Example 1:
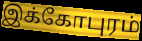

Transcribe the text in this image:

இக்கோபுரம்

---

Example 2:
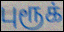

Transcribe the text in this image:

புரூக்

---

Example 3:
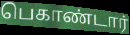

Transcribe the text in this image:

பெகாண்டார்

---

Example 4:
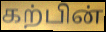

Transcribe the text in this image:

கற்பின்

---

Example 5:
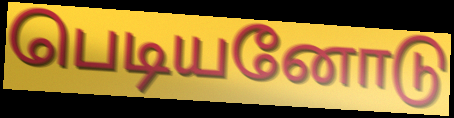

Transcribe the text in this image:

பெடியனோடு